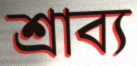
শ্ৰাব্য